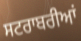
ਸਟਰਾਬਰੀਆਂ